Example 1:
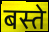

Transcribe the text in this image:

बस्ते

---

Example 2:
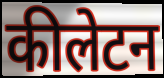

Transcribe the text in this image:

कीलेटन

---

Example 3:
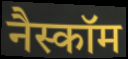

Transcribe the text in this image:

नैस्कॉम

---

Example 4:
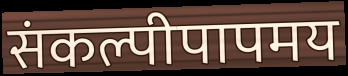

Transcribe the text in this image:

संकल्पीपापमय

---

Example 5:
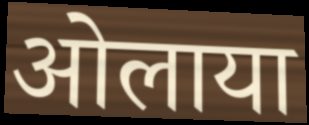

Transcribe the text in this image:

ओलाया